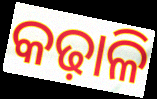
କଢ଼ାଳି